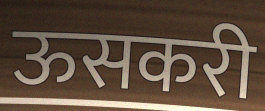
ऊसकरी